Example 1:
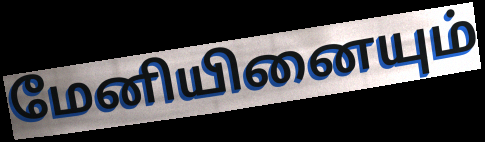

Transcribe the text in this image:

மேனியினையும்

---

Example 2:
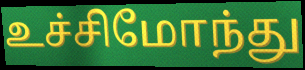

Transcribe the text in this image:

உச்சிமோந்து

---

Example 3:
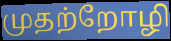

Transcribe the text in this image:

முதற்றோழி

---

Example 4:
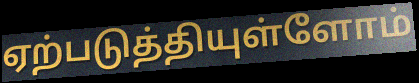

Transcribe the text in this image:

ஏற்படுத்தியுள்ளோம்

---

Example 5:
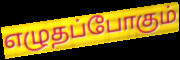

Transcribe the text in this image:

எழுதப்போகும்